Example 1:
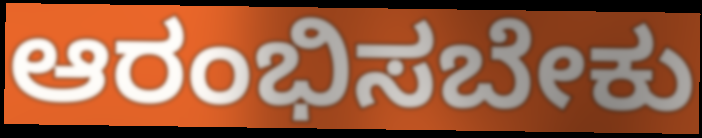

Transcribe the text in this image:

ಆರಂಭಿಸಬೇಕು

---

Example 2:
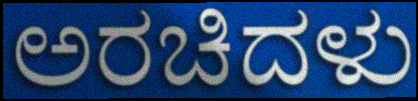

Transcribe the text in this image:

ಅರಚಿದಳು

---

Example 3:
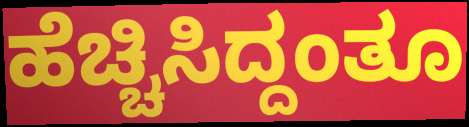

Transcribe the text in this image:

ಹೆಚ್ಚಿಸಿದ್ದಂತೂ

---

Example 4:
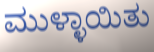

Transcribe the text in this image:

ಮುಳ್ಳಾಯಿತು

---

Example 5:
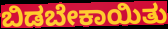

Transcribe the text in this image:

ಬಿಡಬೇಕಾಯಿತು